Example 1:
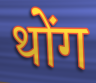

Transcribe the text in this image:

थोंग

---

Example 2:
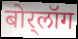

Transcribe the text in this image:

बोर्‌लॉग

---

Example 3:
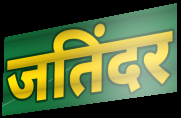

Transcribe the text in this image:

जतिंदर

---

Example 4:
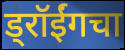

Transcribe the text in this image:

ड्रॉईंगचा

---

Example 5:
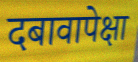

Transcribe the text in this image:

दबावापेक्षा